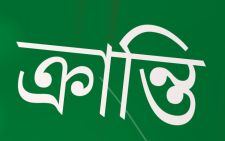
ক্রান্তি